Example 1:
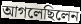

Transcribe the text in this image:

আগলেছিলেন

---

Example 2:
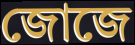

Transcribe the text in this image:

জোজে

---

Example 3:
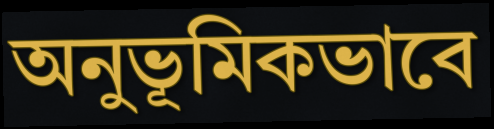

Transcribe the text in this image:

অনুভূমিকভাবে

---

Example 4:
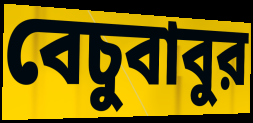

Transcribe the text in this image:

বেচুবাবুর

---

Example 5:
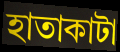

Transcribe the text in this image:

হাতাকাটা